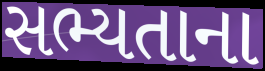
સભ્યતાના